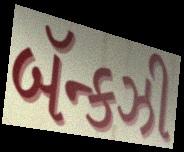
બૅન્કઝી